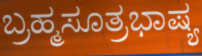
ಬ್ರಹ್ಮಸೂತ್ರಭಾಷ್ಯ